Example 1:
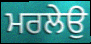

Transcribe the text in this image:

ਮਰਲੇਉ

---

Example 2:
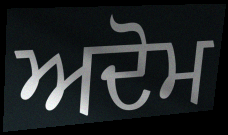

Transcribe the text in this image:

ਅਦੋਮ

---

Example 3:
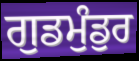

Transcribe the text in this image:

ਗੁਡਮੁੰਡੁਰ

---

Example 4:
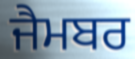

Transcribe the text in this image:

ਜੈਮਬਰ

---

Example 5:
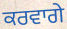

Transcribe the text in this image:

ਕਰਵਾਗੇ